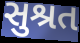
સુશ્રત